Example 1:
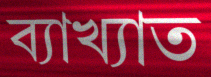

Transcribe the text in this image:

ব্যাখ্যাত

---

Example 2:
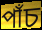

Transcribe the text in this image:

পাঁচ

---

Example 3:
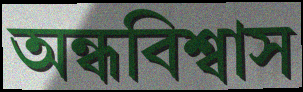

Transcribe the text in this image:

অন্ধবিশ্বাস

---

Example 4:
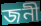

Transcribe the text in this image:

জনী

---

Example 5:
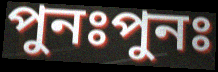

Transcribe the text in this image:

পুনঃপুনঃ